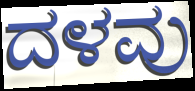
ದಳವು